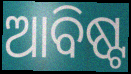
ଆବିଷ୍ଟ